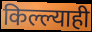
किल्ल्याही